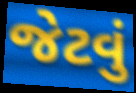
જેટવું